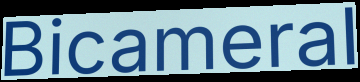
Bicameral